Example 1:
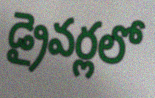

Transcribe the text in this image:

డ్రైవర్లలో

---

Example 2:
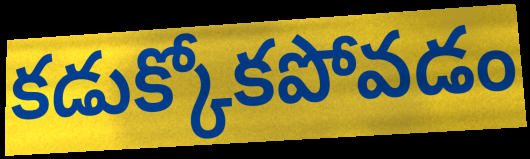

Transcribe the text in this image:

కడుక్కోకపోవడం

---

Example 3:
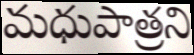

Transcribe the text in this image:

మధుపాత్రని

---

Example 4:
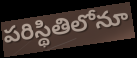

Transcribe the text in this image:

పరిస్థితిలోనూ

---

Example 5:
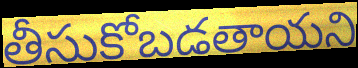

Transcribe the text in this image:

తీసుకోబడతాయని